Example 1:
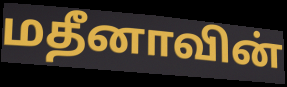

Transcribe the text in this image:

மதீனாவின்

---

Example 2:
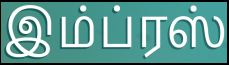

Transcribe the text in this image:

இம்ப்ரஸ்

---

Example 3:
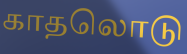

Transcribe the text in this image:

காதலொடு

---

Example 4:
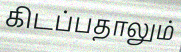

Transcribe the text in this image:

கிடப்பதாலும்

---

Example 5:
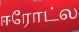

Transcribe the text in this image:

ஈரோட்ல